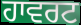
ਹਾਵਰਟ